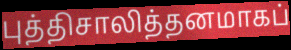
புத்திசாலித்தனமாகப்